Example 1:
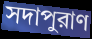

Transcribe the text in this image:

সদাপুরাণ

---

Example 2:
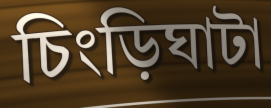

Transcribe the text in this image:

চিংড়িঘাটা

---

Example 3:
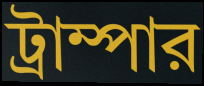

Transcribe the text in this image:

ট্রাম্পার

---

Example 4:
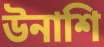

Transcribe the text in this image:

উনাশি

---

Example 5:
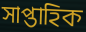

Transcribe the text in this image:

সাপ্তাহিক